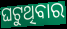
ଘଟୁଥିବାର